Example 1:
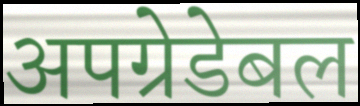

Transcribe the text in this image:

अपग्रेडेबल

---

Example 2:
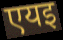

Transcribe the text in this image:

एयइ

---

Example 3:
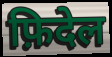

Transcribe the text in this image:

फ़िदेल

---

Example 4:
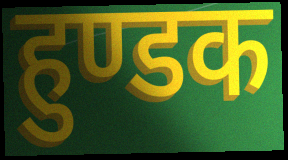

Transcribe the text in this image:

हुण्डक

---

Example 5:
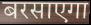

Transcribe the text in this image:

बरसाएगा